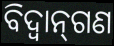
ବିଦ୍ୱାନ୍‌ଗଣ